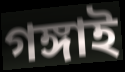
গঙ্গাই